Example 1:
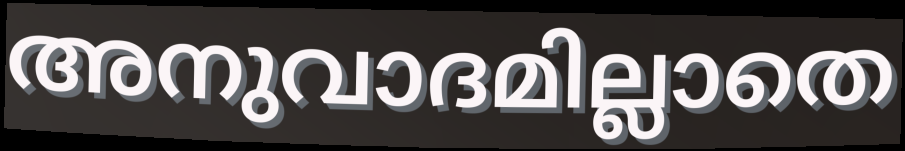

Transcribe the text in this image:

അനുവാദമില്ലാതെ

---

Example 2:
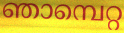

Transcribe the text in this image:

ഞാമ്പെറ്റ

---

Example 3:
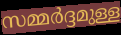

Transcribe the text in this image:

സമ്മർദ്ദമുള്ള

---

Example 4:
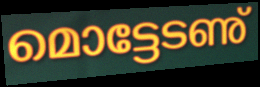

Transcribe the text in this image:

മൊട്ടേടണു്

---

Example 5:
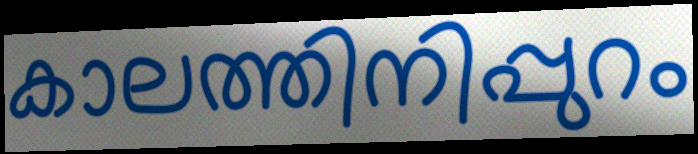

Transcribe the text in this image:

കാലത്തിനിപ്പുറം